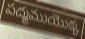
పద్మముయొక్క